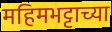
महिमभट्टाच्या